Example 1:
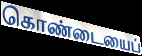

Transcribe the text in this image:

கொண்டையைப்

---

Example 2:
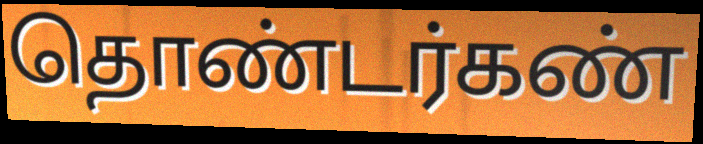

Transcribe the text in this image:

தொண்டர்கண்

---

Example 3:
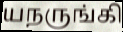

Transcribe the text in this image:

யநருங்கி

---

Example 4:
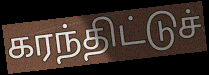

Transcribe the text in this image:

கரந்திட்டுச்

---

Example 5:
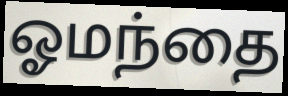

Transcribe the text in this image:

ஓமந்தை